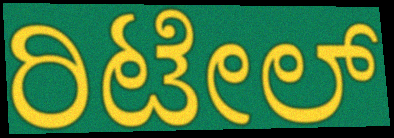
ರಿಟೇಲ್